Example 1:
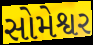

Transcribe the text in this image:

સોમેશ્વર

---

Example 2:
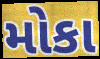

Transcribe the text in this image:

મોકા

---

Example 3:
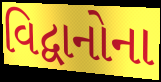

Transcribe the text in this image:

વિદ્વાનોના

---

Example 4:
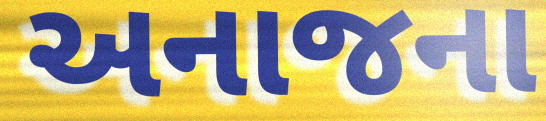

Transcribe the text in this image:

અનાજના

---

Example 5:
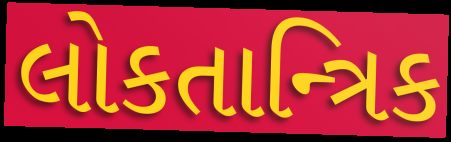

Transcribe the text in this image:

લોકતાન્ત્રિક